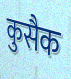
कुसैक